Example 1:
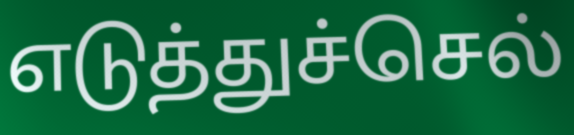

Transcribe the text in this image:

எடுத்துச்செல்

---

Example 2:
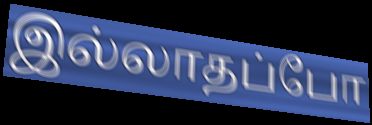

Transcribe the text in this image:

இல்லாதப்போ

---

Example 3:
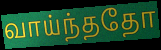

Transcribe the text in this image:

வாய்ந்ததோ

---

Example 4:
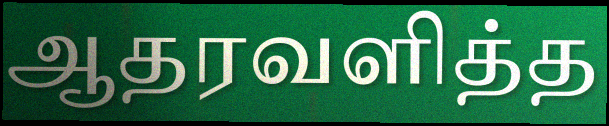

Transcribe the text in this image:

ஆதரவளித்த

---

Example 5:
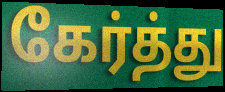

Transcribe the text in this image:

கேர்த்து